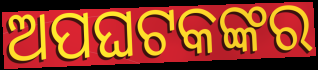
ଅପଘଟକଙ୍କର